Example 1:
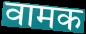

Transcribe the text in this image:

वामक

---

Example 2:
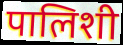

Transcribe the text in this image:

पालिशी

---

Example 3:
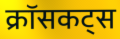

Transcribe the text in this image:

क्रॉसकट्स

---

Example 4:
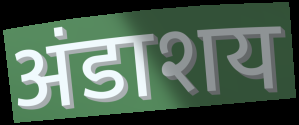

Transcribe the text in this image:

अंडाशय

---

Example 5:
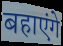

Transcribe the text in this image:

बहाएंगे